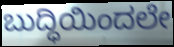
ಬುದ್ಧಿಯಿಂದಲೇ